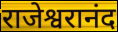
राजेश्वरानंद